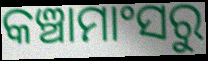
କଞ୍ଚାମାଂସରୁ